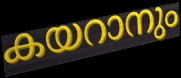
കയറാനും